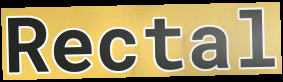
Rectal